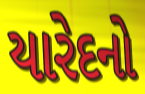
યારેદનો